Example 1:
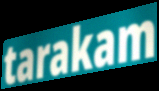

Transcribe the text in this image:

tarakam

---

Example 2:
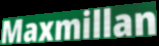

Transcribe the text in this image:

Maxmillan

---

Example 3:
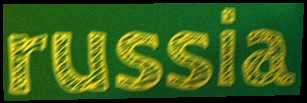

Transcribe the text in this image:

russia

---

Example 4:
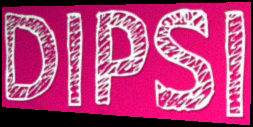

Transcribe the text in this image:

DIPSI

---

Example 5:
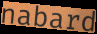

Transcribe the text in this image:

nabard